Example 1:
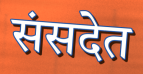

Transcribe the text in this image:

संसदेत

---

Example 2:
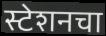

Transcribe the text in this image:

स्टेशनचा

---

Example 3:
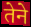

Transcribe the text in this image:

तेने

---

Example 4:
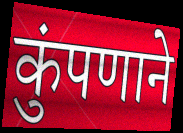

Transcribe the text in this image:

कुंपणाने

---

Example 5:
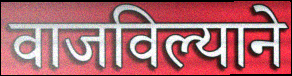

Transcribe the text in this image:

वाजविल्याने